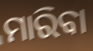
ମାରିବା